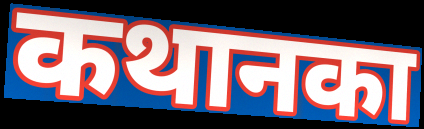
कथानका